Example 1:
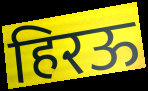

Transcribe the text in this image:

हिरऊ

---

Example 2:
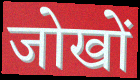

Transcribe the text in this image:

जोखों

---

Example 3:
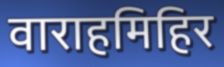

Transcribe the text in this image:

वाराहमिहिर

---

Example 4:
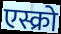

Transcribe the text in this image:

एस्क्रो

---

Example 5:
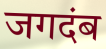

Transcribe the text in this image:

जगदंब